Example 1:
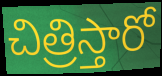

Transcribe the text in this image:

చిత్రిస్తారో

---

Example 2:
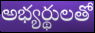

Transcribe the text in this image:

అభ్యర్థులతో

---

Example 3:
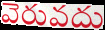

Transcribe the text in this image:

వెరువదు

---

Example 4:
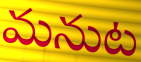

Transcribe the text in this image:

మనుట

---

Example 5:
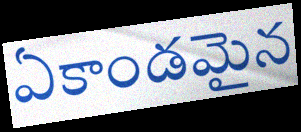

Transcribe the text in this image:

ఏకాండమైన